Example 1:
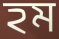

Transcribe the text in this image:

হম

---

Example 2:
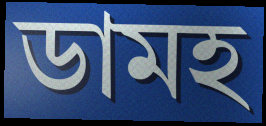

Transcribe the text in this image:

ডামহ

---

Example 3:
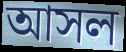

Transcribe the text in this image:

আসল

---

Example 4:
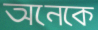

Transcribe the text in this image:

অনেকে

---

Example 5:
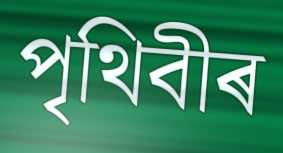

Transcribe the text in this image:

পৃথিবীৰ